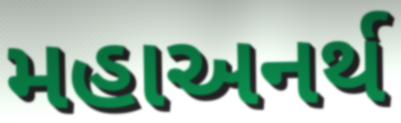
મહાઅનર્થ